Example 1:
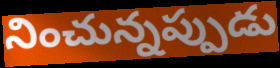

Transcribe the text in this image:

నించున్నప్పుడు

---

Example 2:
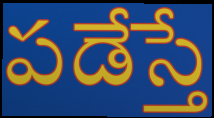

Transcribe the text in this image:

పడేస్తే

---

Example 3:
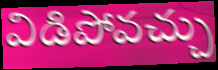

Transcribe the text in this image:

విడిపోవచ్చు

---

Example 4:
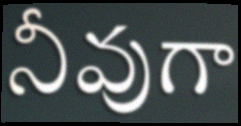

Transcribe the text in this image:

నీవుగా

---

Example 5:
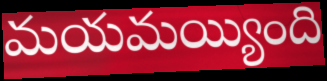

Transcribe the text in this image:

మయమయ్యింది